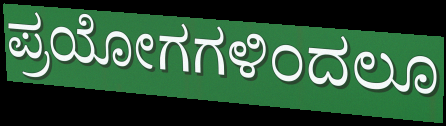
ಪ್ರಯೋಗಗಳಿಂದಲೂ